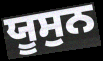
ਯੂਸੁਨ